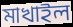
মাখাইল